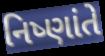
નિષ્ણાંતે